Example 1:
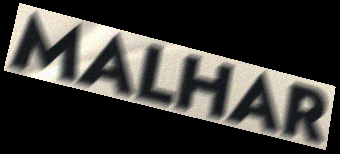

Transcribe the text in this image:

MALHAR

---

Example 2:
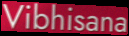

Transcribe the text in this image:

Vibhisana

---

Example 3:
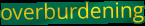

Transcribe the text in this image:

overburdening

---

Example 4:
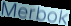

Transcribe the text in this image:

Merbok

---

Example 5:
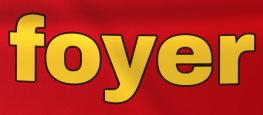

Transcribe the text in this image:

foyer